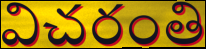
విచరంతి